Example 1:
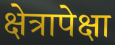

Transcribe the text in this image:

क्षेत्रापेक्षा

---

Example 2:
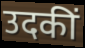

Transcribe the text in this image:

उदकीं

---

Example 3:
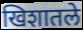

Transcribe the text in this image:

खिशातले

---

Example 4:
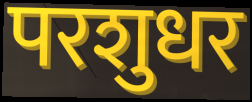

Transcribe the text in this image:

परशुधर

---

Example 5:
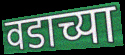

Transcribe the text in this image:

वडाच्या